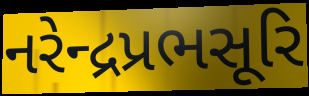
નરેન્દ્રપ્રભસૂરિ